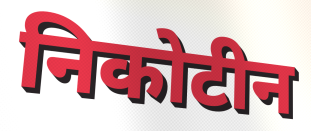
निकोटीन